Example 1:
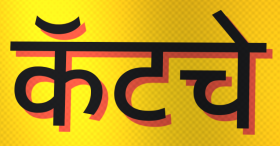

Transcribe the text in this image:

कॅटचे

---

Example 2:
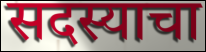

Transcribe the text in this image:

सदस्याचा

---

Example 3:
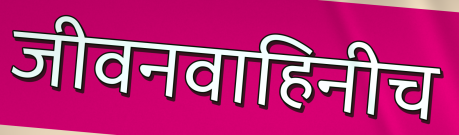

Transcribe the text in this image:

जीवनवाहिनीच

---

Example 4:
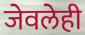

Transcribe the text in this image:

जेवलेही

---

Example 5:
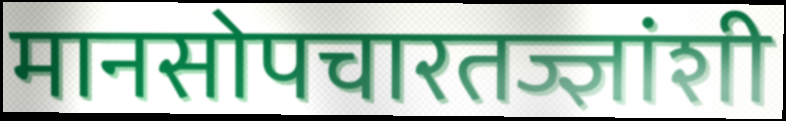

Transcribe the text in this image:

मानसोपचारतज्ज्ञांशी